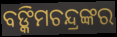
ବଙ୍କିମଚନ୍ଦ୍ରଙ୍କର